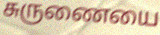
சுருணையை